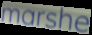
marshe